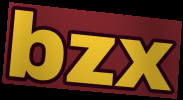
bzx